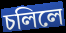
চলিলে